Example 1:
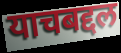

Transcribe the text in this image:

याचबद्दल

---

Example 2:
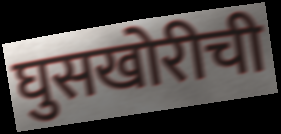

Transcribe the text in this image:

घुसखोरीची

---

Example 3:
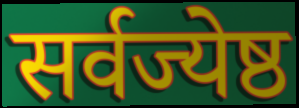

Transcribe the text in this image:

सर्वज्येष्ठ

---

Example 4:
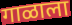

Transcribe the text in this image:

गाळाला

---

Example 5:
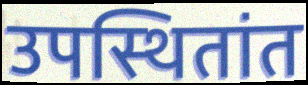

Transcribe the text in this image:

उपस्थितांत